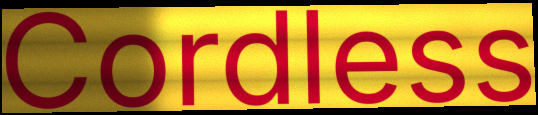
Cordless